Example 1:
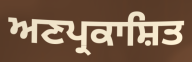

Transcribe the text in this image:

ਅਣਪ੍ਰਕਾਸ਼ਿਤ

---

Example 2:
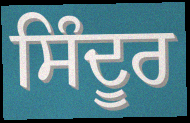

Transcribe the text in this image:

ਸਿੰਦੂਰ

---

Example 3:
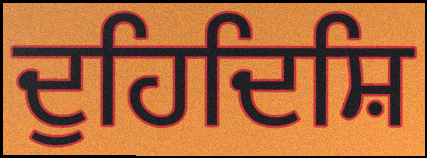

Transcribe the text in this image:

ਦੁਹਿਦਿਸ਼ਿ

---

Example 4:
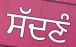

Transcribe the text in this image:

ਸੱਦਣੰ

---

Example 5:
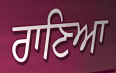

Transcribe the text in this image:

ਰਾਣਿਆ